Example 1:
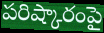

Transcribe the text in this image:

పరిష్కారంపై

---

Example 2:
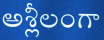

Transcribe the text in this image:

అశ్లీలంగా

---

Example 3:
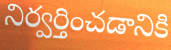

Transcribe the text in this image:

నిర్వర్తించడానికి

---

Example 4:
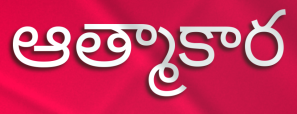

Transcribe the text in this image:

ఆత్మాకార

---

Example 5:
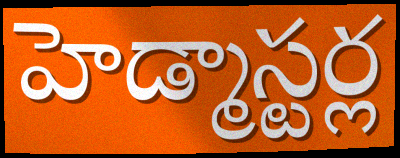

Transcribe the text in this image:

హెడ్మాస్టర్ల